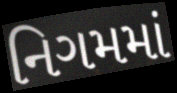
નિગમમાં